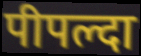
पीपल्दा